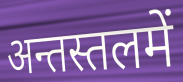
अन्तस्तलमें